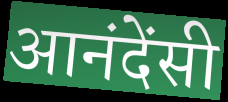
आनंदेंसी